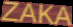
ZAKA